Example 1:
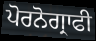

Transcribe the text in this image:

ਪੋਰਨੋਗ੍ਰਾਫੀ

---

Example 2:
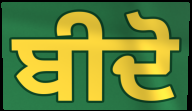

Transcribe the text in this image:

ਬੀਦੋ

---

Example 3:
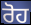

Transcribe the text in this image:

ਰੋਹ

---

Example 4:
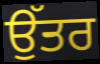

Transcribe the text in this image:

ਉੱਤਰ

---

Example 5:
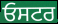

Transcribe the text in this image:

ਓਸਟਰ